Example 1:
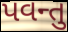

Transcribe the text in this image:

પવન્તુ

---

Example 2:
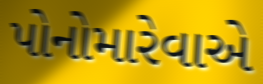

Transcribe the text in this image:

પોનોમારેવાએ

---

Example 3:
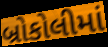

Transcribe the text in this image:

બ્રોકોલીમાં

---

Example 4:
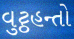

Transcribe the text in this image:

વુટ્ઠહન્તો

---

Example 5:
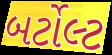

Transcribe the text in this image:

બર્ટોલ્ટ